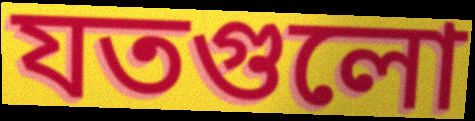
যতগুলো